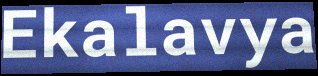
Ekalavya